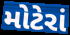
મોટેરાં